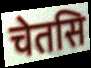
चेतसि